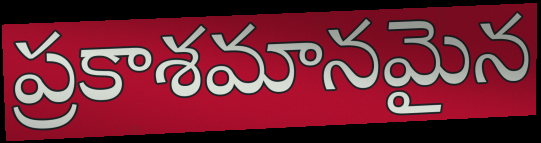
ప్రకాశమానమైన